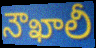
నౌఖాలీ